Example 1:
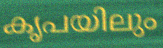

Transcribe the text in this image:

കൃപയിലും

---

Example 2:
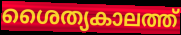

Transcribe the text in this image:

ശൈത്യകാലത്ത്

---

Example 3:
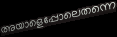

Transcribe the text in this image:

അയാളെപ്പോലെതന്നെ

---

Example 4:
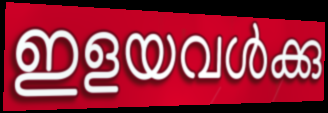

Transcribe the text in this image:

ഇളയവൾക്കു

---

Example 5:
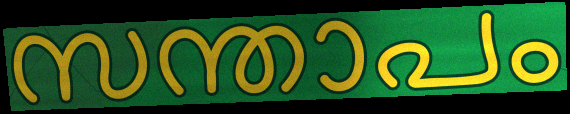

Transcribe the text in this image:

സന്താപം